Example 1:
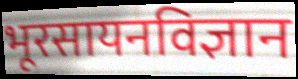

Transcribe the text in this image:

भूरसायनविज्ञान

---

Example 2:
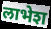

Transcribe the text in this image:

लाभेश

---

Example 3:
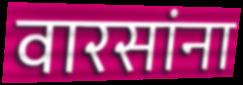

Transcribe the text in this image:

वारसांना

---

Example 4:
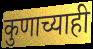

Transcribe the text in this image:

कुणाच्याही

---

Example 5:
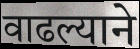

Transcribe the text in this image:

वाढल्याने